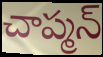
చాప్మన్